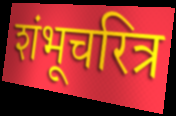
शंभूचरित्र